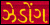
ઝેડોંગ